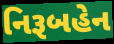
નિરૂબહેન